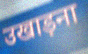
उखाड़ना